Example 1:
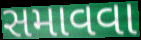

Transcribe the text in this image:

સમાવવા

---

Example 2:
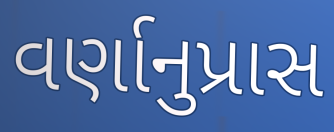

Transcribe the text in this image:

વર્ણાનુપ્રાસ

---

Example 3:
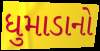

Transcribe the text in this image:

ધુમાડાનો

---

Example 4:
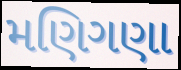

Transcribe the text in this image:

મણિગણા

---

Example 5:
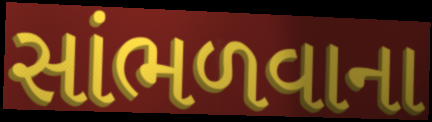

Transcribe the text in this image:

સાંભળવાના